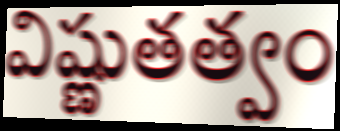
విష్ణుతత్వం